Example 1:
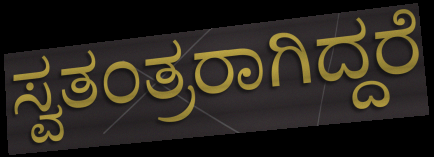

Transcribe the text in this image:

ಸ್ವತಂತ್ರರಾಗಿದ್ದರೆ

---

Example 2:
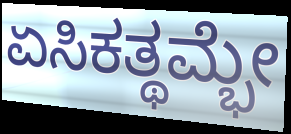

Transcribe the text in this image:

ಏಸಿಕತ್ಥಮ್ಭೇ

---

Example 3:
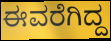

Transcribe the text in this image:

ಈವರೆಗಿದ್ದ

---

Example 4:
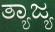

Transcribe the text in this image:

ತ್ಯಾಜ್ಯ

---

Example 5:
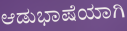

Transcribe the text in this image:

ಆಡುಭಾಷೆಯಾಗಿ